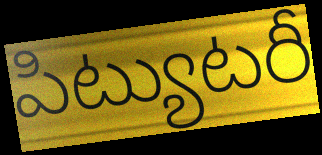
పిట్యుటరీ